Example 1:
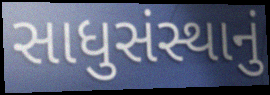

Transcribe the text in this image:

સાધુસંસ્થાનું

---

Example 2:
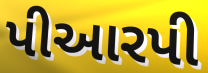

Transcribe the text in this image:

પીઆરપી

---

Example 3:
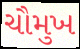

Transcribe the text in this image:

ચૌમુખ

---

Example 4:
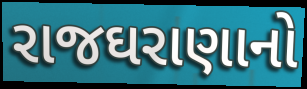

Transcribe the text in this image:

રાજઘરાણાનો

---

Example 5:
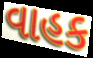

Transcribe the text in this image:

વાહક